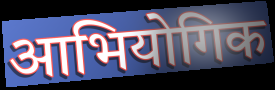
आभियोगिक